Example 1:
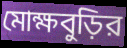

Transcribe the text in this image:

মোক্ষবুড়ির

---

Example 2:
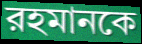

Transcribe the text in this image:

রহমানকে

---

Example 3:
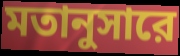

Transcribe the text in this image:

মতানুসারে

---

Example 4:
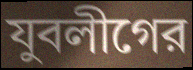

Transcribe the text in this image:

যুবলীগের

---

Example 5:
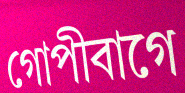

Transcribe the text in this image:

গোপীবাগে